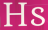
Hs